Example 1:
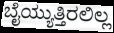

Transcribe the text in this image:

ಬೈಯ್ಯುತ್ತಿರಲಿಲ್ಲ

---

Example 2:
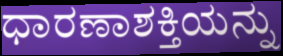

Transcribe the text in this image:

ಧಾರಣಾಶಕ್ತಿಯನ್ನು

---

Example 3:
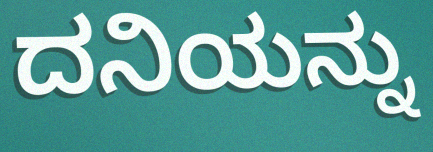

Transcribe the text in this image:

ದನಿಯನ್ನು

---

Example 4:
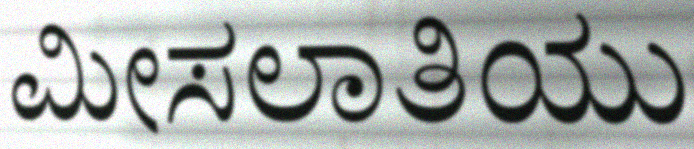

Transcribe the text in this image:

ಮೀಸಲಾತಿಯು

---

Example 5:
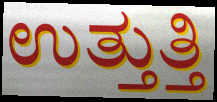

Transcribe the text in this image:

ಉತ್ತುತ್ತಿ